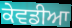
ਕੇਵਡੀਆ